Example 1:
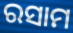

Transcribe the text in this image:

ରସାମ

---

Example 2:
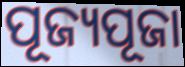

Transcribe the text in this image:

ପୂଜ୍ୟପୂଜା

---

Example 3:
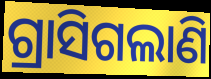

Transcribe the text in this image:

ଗ୍ରାସିଗଲାଣି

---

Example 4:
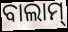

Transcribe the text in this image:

ବାଲାମ୍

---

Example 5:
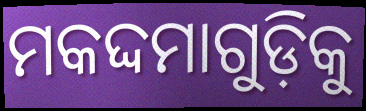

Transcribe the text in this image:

ମକଦ୍ଦମାଗୁଡ଼ିକୁ